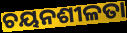
ଚୟନଶୀଳତା